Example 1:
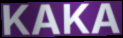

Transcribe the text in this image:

KAKA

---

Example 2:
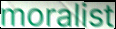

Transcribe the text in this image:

moralist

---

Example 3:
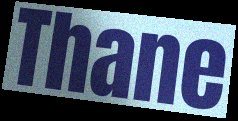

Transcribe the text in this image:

Thane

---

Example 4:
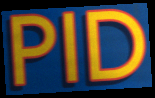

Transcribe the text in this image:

PID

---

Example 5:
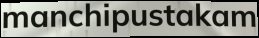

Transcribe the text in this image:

manchipustakam